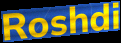
Roshdi